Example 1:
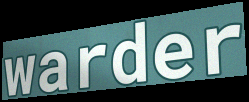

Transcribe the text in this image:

warder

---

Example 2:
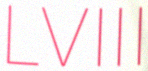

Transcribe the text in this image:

LVIII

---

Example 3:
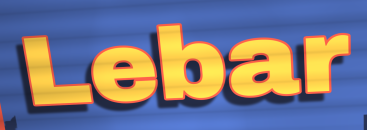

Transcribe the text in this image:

Lebar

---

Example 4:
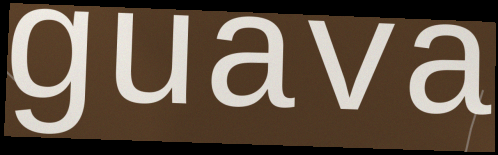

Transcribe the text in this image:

guava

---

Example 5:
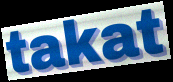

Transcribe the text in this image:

takat